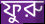
ফুরু